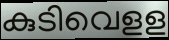
കുടിവെളള